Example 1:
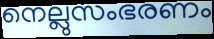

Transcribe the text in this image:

നെല്ലുസംഭരണം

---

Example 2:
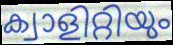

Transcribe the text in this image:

ക്വാളിറ്റിയും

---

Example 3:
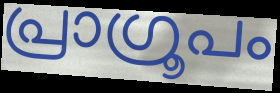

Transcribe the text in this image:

പ്രാഗ്രൂപം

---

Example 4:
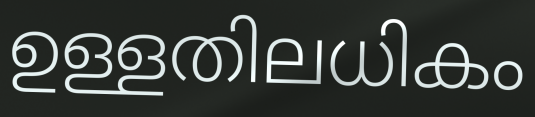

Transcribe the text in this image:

ഉള്ളതിലധികം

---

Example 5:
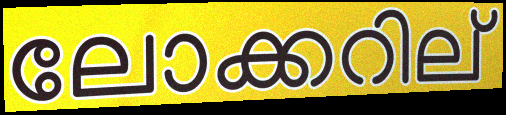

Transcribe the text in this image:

ലോക്കറില്